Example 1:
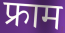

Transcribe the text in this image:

फ्राम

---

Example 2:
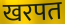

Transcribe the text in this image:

खरपत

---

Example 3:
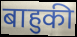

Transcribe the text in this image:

बाहुकी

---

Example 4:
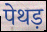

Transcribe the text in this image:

पेथड़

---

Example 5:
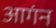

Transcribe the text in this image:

आगंन